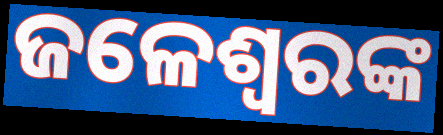
ଜଳେଶ୍ଵରଙ୍କ